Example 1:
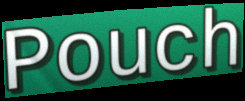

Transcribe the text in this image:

Pouch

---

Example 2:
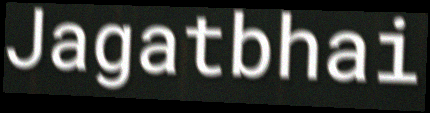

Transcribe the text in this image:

Jagatbhai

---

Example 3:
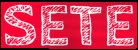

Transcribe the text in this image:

SETE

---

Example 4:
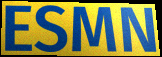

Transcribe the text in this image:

ESMN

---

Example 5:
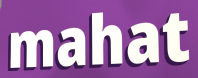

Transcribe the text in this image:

mahat